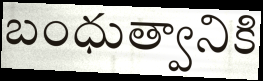
బంధుత్వానికి